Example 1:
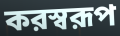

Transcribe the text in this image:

করস্বরূপ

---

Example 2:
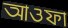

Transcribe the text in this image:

আওফা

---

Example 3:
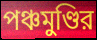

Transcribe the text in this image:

পঞ্চমুণ্ডির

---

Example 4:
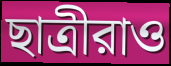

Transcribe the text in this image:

ছাত্রীরাও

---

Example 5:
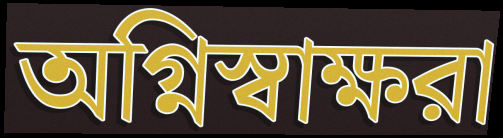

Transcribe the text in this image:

অগ্নিস্বাক্ষরা